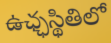
ఉఛ్ఛస్థితిలో